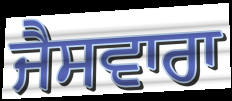
ਜੈਸਵਾਰਾ